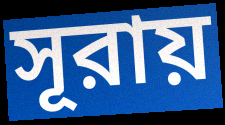
সূরায়